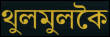
থুলমুলকৈ